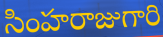
సింహరాజుగారి